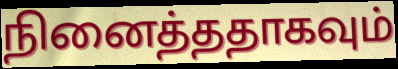
நினைத்ததாகவும்